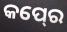
କପ୍‍ରେ